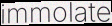
immolate